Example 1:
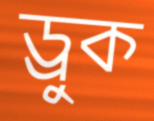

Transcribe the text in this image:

ড্রুক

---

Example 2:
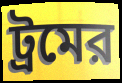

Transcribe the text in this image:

ট্রমের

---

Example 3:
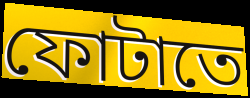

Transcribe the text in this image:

ফোটাতে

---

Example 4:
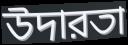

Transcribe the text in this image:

উদারতা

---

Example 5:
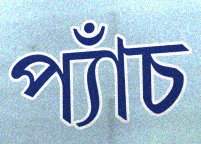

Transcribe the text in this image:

প্যাঁচ